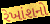
રેખાંશનો